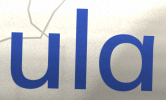
ula